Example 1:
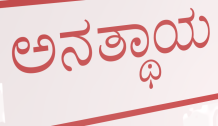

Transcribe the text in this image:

ಅನತ್ಥಾಯ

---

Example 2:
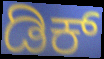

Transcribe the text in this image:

ಡಿಕ್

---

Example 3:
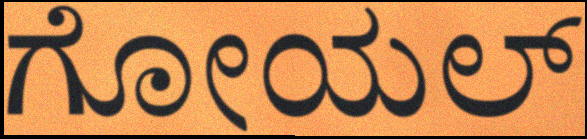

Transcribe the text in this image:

ಗೋಯಲ್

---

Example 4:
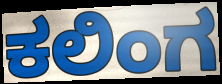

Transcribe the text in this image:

ಕಲಿಂಗ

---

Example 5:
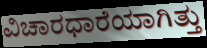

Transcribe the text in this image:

ವಿಚಾರಧಾರೆಯಾಗಿತ್ತು